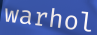
warhol